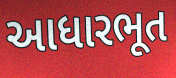
આધારભૂત